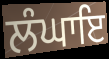
ਲੰਘਾਇ